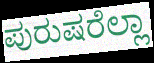
ಪುರುಷರೆಲ್ಲಾ